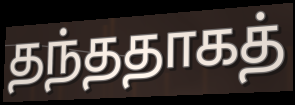
தந்ததாகத்